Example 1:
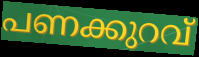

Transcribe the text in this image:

പണക്കുറവ്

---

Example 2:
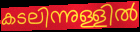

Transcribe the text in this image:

കടലിന്നുള്ളിൽ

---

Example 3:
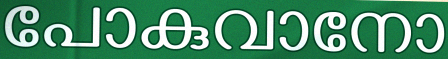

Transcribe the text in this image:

പോകുവാനോ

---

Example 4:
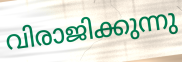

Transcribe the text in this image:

വിരാജിക്കുന്നു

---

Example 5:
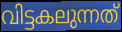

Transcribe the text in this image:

വിട്ടകലുന്നത്